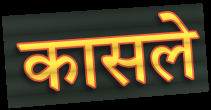
कासले